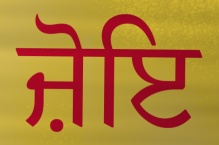
ਜ਼ੋਇ